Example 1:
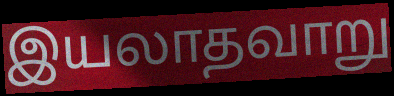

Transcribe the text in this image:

இயலாதவாறு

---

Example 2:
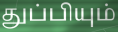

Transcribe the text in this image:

துப்பியும்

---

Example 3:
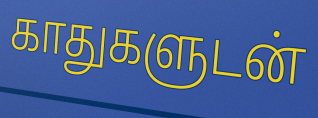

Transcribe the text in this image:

காதுகளுடன்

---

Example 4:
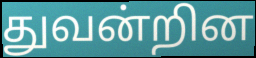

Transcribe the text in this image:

துவன்றின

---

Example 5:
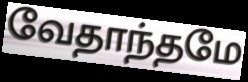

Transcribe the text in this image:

வேதாந்தமே